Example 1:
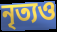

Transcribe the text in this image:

নৃত্যও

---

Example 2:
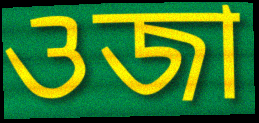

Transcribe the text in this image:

ওজা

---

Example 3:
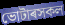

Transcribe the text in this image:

ভোটাৰসকল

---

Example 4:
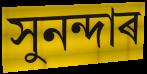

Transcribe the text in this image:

সুনন্দাৰ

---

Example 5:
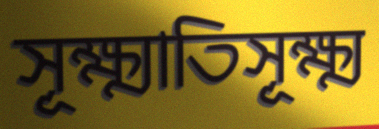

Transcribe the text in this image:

সূক্ষ্মাতিসূক্ষ্ম